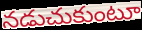
నడుచుకుంటూ